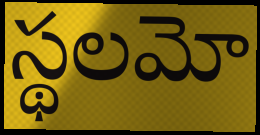
స్థలమో